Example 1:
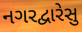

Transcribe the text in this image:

નગરદ્વારેસુ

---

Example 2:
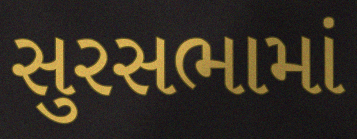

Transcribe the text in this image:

સુરસભામાં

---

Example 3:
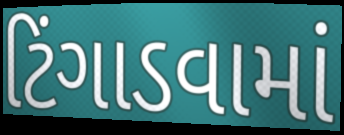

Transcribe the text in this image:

ટિંગાડવામાં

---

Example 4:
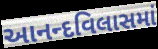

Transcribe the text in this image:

આનન્દવિલાસમાં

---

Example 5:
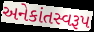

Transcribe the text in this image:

અનેકાંતસ્વરૂપ